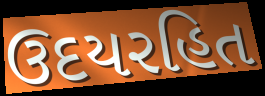
ઉદયરહિત